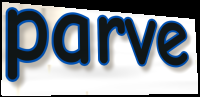
parve